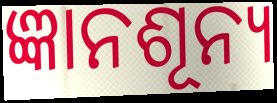
ଜ୍ଞାନଶୂନ୍ୟ